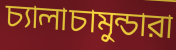
চ্যালাচামুন্ডারা